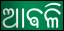
ଆଵଳି